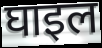
घाइल